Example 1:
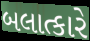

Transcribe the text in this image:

બલાત્કારે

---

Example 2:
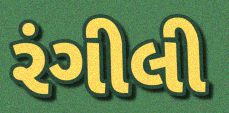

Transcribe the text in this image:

રંગીલી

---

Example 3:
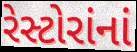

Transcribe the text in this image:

રેસ્ટોરાંનાં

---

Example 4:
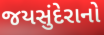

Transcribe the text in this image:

જયસુંદેરાનો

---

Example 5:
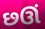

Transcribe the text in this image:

છઊં